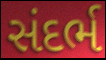
સંદર્ભ